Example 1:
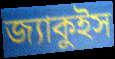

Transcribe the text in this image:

জ্যাকুইস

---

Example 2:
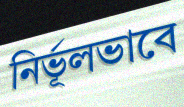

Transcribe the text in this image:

নির্ভূলভাবে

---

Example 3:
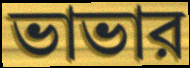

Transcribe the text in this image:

ভাভার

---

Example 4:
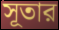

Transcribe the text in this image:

সূতার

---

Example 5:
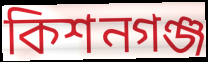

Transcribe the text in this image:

কিশনগঞ্জ